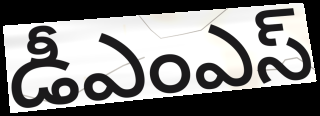
డీఎంఎస్